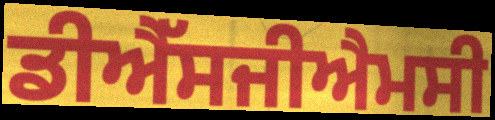
ਡੀਐੱਸਜੀਐਮਸੀ